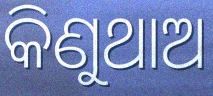
କିଣୁଥାଅ